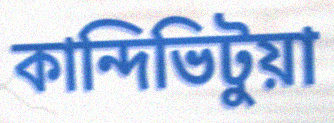
কান্দিভিটুয়া